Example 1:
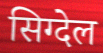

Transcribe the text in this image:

सिग्देल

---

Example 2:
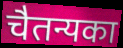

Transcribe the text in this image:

चैतन्यका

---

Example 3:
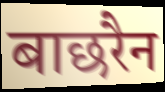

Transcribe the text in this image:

बाछरैन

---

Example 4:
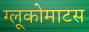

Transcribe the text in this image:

ग्लूकोमाटस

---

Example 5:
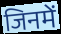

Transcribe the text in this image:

जिनमें